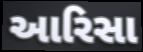
આરિસા